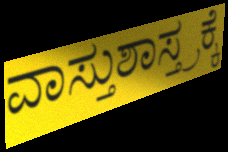
ವಾಸ್ತುಶಾಸ್ತ್ರಕ್ಕೆ